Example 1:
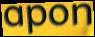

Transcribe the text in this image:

apon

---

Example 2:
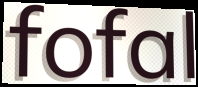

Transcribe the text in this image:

fofal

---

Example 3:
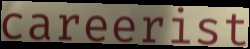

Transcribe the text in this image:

careerist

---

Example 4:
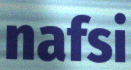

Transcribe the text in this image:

nafsi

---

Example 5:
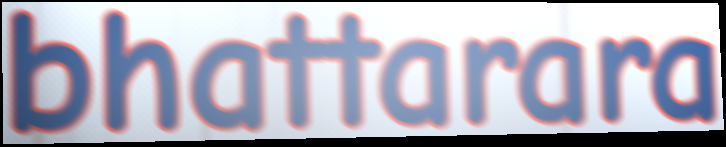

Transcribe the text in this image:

bhattarara